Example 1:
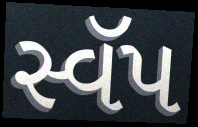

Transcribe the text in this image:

સ્વૅપ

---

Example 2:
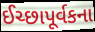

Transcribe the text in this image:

ઈચ્છાપૂર્વકના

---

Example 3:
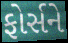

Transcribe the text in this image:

ફોર્સને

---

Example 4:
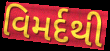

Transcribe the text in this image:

વિમર્દથી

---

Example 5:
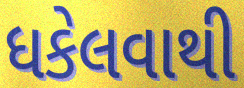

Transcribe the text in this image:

ધકેલવાથી